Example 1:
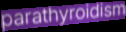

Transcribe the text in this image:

parathyroidism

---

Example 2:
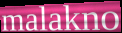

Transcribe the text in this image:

malakno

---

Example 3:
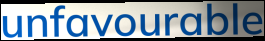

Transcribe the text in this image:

unfavourable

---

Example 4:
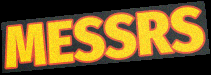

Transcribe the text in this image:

MESSRS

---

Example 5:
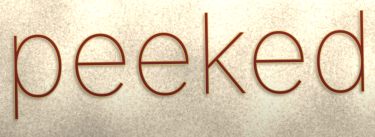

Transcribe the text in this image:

peeked